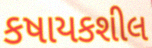
કષાયકશીલ